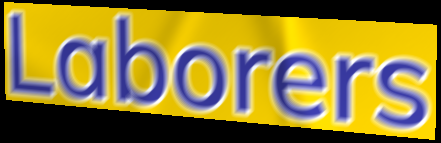
Laborers